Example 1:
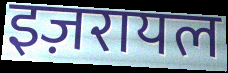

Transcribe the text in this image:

इज़रायल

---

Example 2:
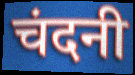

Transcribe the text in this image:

चंदनी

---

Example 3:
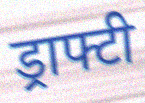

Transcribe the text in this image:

ड्राफ्टी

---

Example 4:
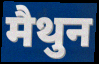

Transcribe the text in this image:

मैथुन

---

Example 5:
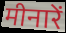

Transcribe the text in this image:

मीनारें